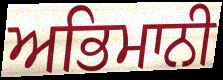
ਅਭਿਮਾਨੀ